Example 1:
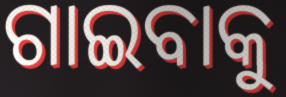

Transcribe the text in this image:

ଗାଇବାକୁ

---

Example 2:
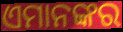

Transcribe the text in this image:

ଏମାନଙ୍କର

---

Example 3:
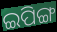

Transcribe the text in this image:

ଇପିଙ୍ଗ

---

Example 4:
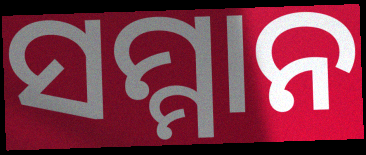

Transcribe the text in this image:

ସମ୍ମାନ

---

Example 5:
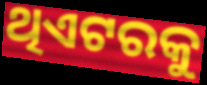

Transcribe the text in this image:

ଥିଏଟରକୁ